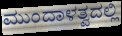
ಮುಂದಾಳತ್ವದಲ್ಲಿ